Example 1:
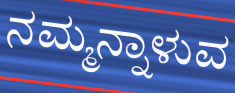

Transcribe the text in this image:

ನಮ್ಮನ್ನಾಳುವ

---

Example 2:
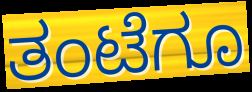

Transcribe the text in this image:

ತಂಟೆಗೂ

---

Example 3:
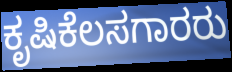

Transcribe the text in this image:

ಕೃಷಿಕೆಲಸಗಾರರು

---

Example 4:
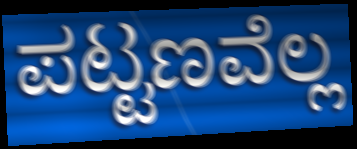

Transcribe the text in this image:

ಪಟ್ಟಣವೆಲ್ಲ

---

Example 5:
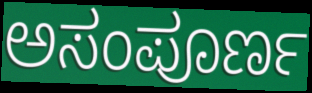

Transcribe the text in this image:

ಅಸಂಪೂರ್ಣ